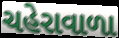
ચહેરાવાળા